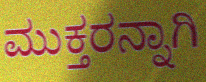
ಮುಕ್ತರನ್ನಾಗಿ